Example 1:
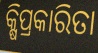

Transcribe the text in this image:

କ୍ଷିପ୍ରକାରିତା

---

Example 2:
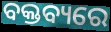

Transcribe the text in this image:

ବକ୍ତବ୍ୟରେ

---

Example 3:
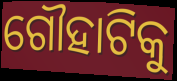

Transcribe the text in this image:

ଗୌହାଟିକୁ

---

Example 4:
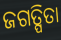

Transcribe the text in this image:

ଜଗତ୍ପିତା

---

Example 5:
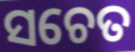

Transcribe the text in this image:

ସଚେତ